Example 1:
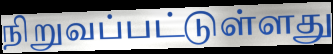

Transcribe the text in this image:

நிறுவப்பட்டுள்ளது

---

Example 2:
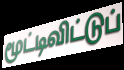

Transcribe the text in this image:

மூட்டிவிட்டுப்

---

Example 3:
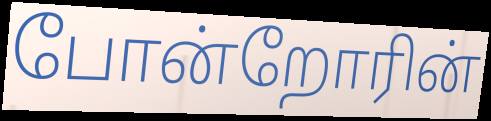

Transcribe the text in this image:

போன்றோரின்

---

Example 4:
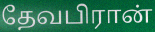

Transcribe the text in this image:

தேவபிரான்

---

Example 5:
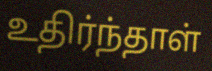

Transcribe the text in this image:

உதிர்ந்தாள்